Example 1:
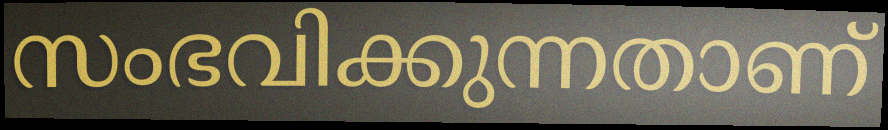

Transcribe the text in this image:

സംഭവിക്കുന്നതാണ്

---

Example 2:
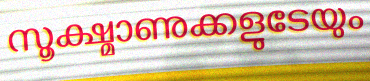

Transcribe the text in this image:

സൂക്ഷ്മാണുക്കളുടേയും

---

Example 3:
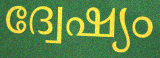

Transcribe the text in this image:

ദ്വേഷ്യം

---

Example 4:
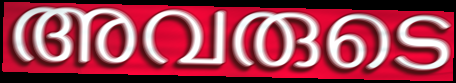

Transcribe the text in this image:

അവരുടെ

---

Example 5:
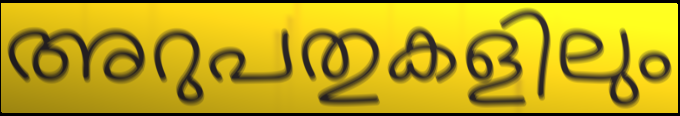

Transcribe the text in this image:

അറുപതുകളിലും